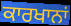
ਕਾਰਖਾਨਾਂ